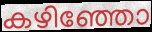
കഴിഞ്ഞോ